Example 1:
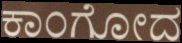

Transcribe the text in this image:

ಕಾಂಗೋದ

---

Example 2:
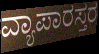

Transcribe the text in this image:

ವ್ಯಾಪಾರಸ್ತರ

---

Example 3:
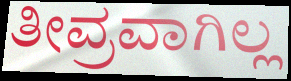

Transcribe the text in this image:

ತೀವ್ರವಾಗಿಲ್ಲ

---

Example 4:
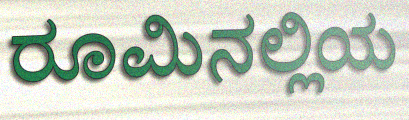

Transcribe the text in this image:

ರೂಮಿನಲ್ಲಿಯ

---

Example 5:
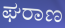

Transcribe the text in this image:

ಘರಾಣ